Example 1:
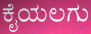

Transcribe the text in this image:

ಕೈಯಲಗು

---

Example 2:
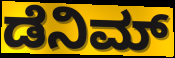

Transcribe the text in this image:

ಡೆನಿಮ್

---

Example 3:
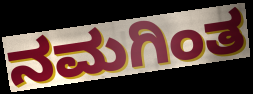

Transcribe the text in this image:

ನಮಗಿಂತ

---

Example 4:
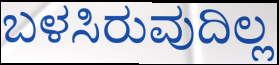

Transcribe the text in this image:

ಬಳಸಿರುವುದಿಲ್ಲ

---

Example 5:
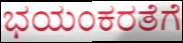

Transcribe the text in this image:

ಭಯಂಕರತೆಗೆ